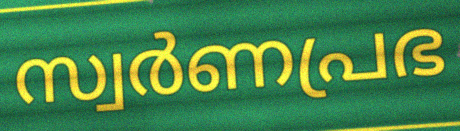
സ്വർണപ്രഭ